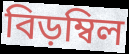
বিড়ম্বিল